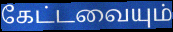
கேட்டவையும்